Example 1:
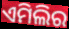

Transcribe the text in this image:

ଏମିଲିର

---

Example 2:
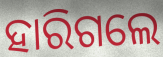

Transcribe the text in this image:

ହାରିଗଲେ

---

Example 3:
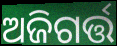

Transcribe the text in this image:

ଅଜିଗର୍ତ୍ତ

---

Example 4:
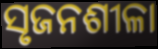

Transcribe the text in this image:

ସୃଜନଶୀଳା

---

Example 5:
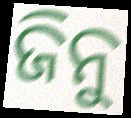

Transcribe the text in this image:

ଜିନୁ